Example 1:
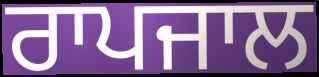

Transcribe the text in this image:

ਰਾਪਜਾਲ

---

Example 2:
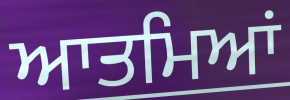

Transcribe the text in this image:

ਆਤਮਿਆਂ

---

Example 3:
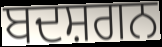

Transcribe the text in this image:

ਬਦਸ਼ਗਨ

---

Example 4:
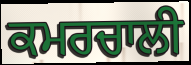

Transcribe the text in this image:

ਕਮਰਚਾਲੀ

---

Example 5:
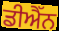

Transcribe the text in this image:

ਡੀਐੱਨ